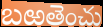
బఱతెంచు